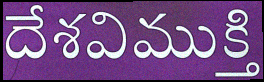
దేశవిముక్తి